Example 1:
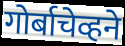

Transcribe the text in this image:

गोर्बाचेव्हने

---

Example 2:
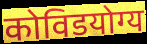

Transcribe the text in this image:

कोविडयोग्य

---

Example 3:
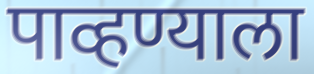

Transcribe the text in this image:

पाव्हण्याला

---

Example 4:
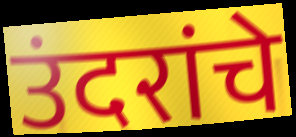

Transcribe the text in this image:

उंदरांचे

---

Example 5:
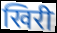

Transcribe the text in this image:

खिरी